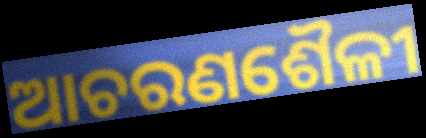
ଆଚରଣଶୈଳୀ